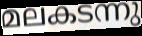
മലകടന്നു